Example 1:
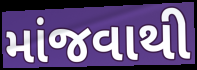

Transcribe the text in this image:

માંજવાથી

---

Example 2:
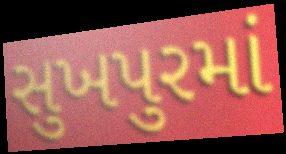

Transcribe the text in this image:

સુખપુરમાં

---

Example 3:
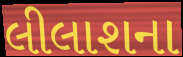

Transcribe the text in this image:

લીલાશના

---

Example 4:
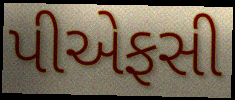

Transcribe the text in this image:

પીએફસી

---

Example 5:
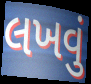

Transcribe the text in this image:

લખવું